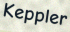
Keppler